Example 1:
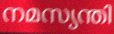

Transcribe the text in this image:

നമസ്യന്തി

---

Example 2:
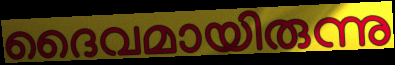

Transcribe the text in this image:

ദൈവമായിരുന്നു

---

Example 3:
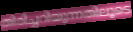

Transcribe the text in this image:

തിരിച്ചറിയുന്നതിലൂടെ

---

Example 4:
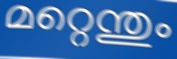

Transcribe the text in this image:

മറ്റെന്തും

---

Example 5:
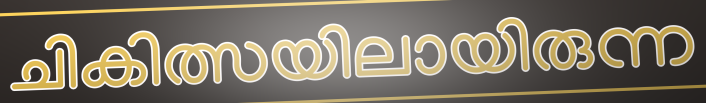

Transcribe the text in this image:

ചികിത്സയിലായിരുന്ന